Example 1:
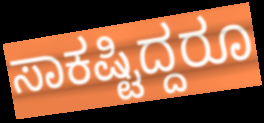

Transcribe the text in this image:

ಸಾಕಷ್ಟಿದ್ದರೂ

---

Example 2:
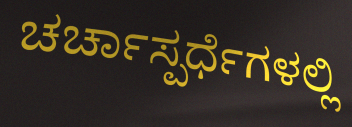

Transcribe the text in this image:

ಚರ್ಚಾಸ್ಪರ್ಧೆಗಳಲ್ಲಿ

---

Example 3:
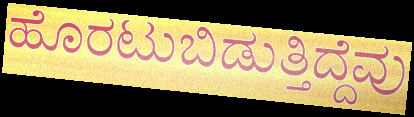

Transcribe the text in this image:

ಹೊರಟುಬಿಡುತ್ತಿದ್ದೆವು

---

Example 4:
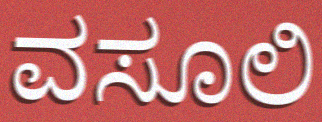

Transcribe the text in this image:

ವಸೂಲಿ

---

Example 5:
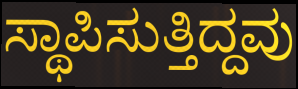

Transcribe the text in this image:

ಸ್ಥಾಪಿಸುತ್ತಿದ್ದವು